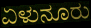
ಏಳುನೂರು